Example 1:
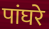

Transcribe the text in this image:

पांघरे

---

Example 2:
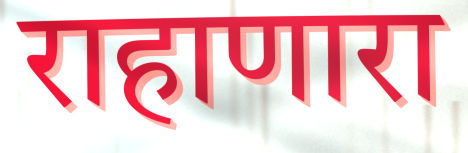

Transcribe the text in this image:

राहाणारा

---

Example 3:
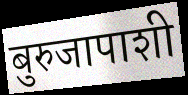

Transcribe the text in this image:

बुरुजापाशी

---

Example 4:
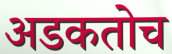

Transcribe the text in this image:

अडकतोच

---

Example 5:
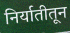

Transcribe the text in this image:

निर्यातीतून